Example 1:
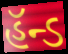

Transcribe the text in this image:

હૅન્ડ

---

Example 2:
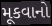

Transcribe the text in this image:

મૂકવાનો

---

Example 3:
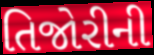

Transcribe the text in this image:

તિજોરીની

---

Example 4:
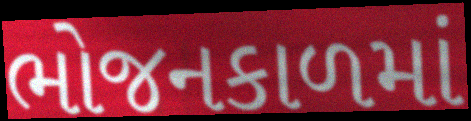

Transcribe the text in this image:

ભોજનકાળમાં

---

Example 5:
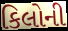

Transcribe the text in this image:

કિલોની